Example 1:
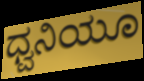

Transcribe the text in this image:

ಧ್ವನಿಯೂ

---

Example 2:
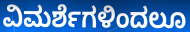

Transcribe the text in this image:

ವಿಮರ್ಶೆಗಳಿಂದಲೂ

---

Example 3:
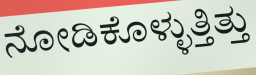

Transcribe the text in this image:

ನೋಡಿಕೊಳ್ಳುತ್ತಿತ್ತು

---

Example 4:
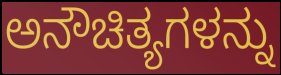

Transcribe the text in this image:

ಅನೌಚಿತ್ಯಗಳನ್ನು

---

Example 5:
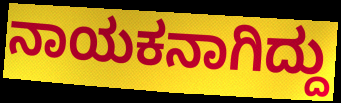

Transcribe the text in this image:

ನಾಯಕನಾಗಿದ್ದು